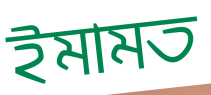
ইমামত